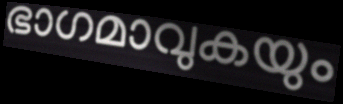
ഭാഗമാവുകയും